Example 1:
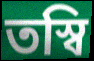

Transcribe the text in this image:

তস্বি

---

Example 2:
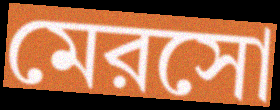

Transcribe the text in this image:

মেরসো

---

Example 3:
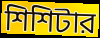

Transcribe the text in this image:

শিশিটার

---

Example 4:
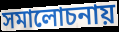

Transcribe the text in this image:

সমালোচনায়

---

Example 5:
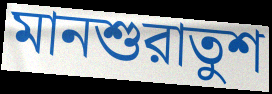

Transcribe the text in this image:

মানশুরাতুশ